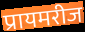
प्रायमरीज